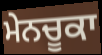
ਮੇਨਚੂਕਾ